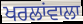
ਖਰਲਾਂਵਾਲਾ